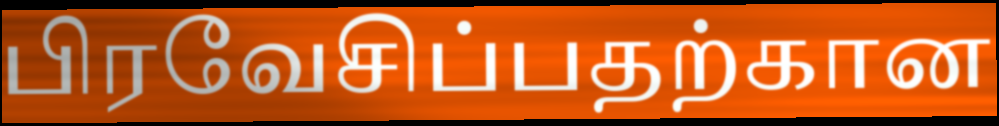
பிரவேசிப்பதற்கான